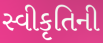
સ્વીકૃતિની